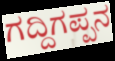
ಗದ್ದಿಗಪ್ಪನ